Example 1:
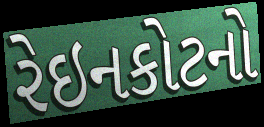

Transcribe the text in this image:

રેઇનકોટનો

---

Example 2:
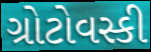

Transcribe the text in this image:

ગ્રોટોવસ્કી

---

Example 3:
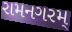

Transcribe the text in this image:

રામનગરમ્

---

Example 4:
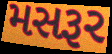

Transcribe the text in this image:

મસરૂર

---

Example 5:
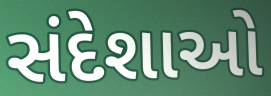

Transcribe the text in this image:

સંદેશાઓ